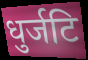
धुर्जटि